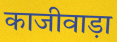
काजीवाड़ा